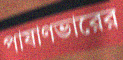
পাষাণভারের